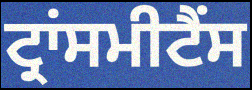
ਟ੍ਰਾਂਸਮੀਟੈਂਸ